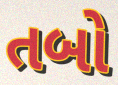
તબો